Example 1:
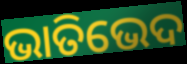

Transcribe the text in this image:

ଭାତିଭେଦ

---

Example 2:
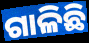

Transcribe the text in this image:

ଗାଳିଛି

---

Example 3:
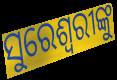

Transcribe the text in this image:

ସୁରେଶ୍ୱରୀଙ୍କୁ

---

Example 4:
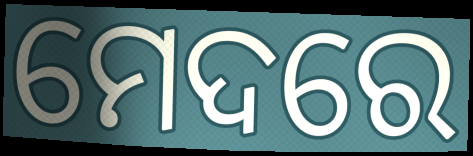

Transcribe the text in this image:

ମେଦରେ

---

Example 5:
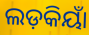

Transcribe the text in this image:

ଲଡ଼କିୟାଁ